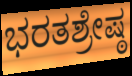
ಭರತಶ್ರೇಷ್ಠ